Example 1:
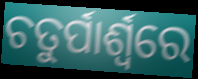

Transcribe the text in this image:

ଚତୁର୍ପାର୍ଶ୍ୱରେ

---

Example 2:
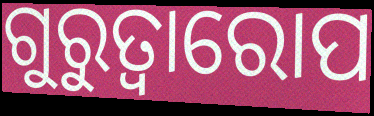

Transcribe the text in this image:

ଗୁରୁତ୍ବାରୋପ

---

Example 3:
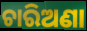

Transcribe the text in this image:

ଚାରିଅଣା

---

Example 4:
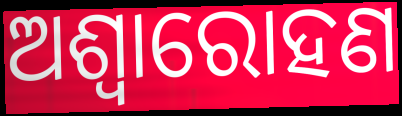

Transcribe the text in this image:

ଅଶ୍ୱାରୋହଣ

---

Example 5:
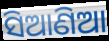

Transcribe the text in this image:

ସିଆଣିଆ